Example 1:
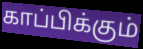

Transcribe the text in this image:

காப்பிக்கும்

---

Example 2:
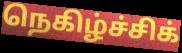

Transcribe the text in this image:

நெகிழ்ச்சிக்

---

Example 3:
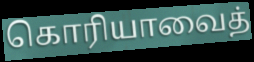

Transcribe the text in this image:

கொரியாவைத்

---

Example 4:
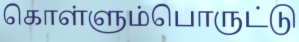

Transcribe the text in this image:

கொள்ளும்பொருட்டு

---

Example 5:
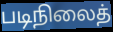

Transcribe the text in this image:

படிநிலைத்